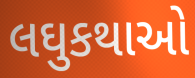
લઘુકથાઓ